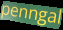
penngal